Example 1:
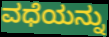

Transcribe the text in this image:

ವಧೆಯನ್ನು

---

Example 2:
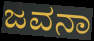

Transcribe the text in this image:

ಜವನಾ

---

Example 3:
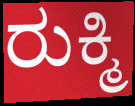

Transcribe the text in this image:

ರುಕ್ಮಿ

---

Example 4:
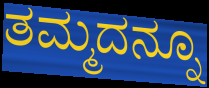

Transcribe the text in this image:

ತಮ್ಮದನ್ನೂ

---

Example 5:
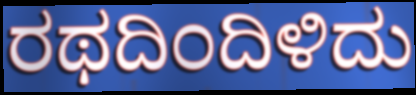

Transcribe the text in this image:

ರಥದಿಂದಿಳಿದು